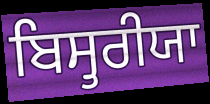
ਬਿਸ੍ਤਰੀਯਾ